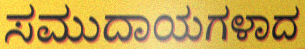
ಸಮುದಾಯಗಳಾದ